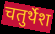
चतुर्थेश